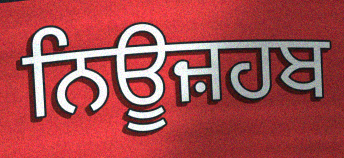
ਨਿਊਜ਼ਹਬ